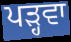
ਪੜ੍ਹਵਾ